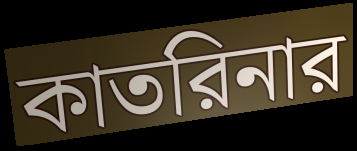
কাতরিনার